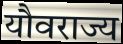
यौवराज्य